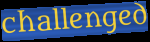
challenged